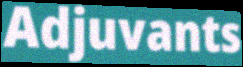
Adjuvants